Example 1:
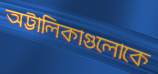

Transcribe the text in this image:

অট্টালিকাগুলোকে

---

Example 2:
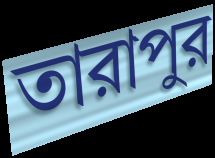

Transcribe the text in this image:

তারাপুর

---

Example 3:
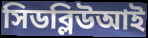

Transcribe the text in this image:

সিডব্লিউআই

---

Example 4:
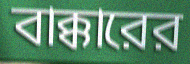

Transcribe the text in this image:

বাক্কারের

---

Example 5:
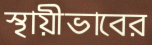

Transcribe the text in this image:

স্থায়ীভাবের